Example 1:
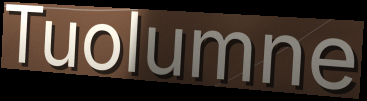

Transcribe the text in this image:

Tuolumne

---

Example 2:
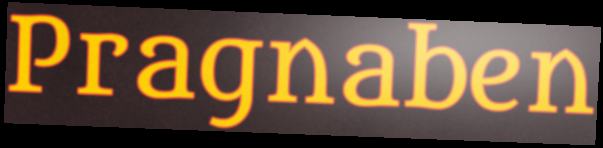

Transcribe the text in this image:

Pragnaben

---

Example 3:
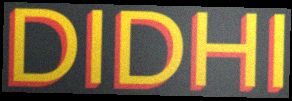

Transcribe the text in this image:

DIDHI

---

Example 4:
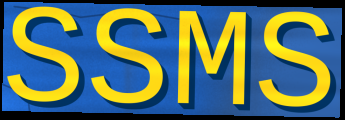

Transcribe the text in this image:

SSMS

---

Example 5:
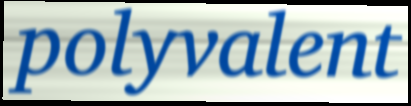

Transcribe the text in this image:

polyvalent